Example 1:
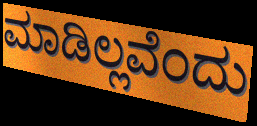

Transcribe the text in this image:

ಮಾಡಿಲ್ಲವೆಂದು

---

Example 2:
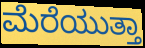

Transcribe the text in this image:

ಮೆರೆಯುತ್ತಾ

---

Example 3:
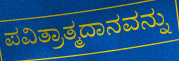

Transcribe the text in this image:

ಪವಿತ್ರಾತ್ಮದಾನವನ್ನು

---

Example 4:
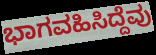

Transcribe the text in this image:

ಭಾಗವಹಿಸಿದ್ದೆವು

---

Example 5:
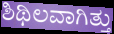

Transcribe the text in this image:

ಶಿಥಿಲವಾಗಿತ್ತು